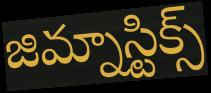
జిమ్నాస్టిక్స్